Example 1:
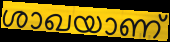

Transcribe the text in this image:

ശാഖയാണ്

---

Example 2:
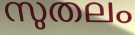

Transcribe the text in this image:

സുതലം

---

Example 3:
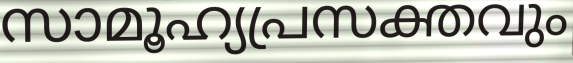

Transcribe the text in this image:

സാമൂഹ്യപ്രസക്തവും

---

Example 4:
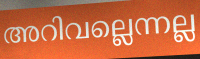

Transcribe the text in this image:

അറിവല്ലെന്നല്ല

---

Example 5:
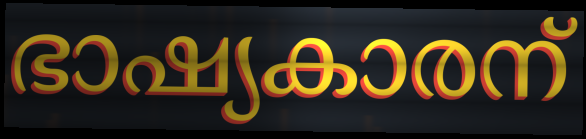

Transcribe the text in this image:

ഭാഷ്യകാരന്